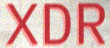
XDR